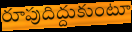
రూపుదిద్దుకుంటూ